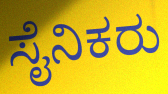
ಸೈನಿಕರು